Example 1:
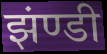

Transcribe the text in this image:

झंण्डी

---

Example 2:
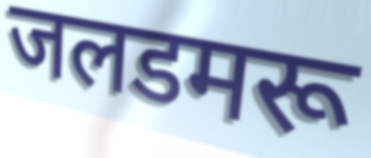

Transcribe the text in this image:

जलडमरू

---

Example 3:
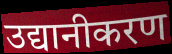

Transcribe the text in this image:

उद्यानीकरण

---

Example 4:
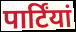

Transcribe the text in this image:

पार्टिंयां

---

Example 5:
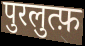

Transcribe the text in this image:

पुरलुत्फ़